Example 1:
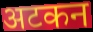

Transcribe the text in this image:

अटकन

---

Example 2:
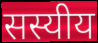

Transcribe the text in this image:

सस्यीय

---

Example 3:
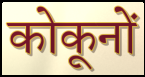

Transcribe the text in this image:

कोकूनों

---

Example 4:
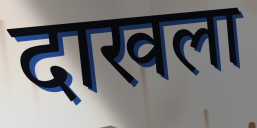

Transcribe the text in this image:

दाखला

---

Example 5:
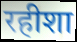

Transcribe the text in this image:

रहीशा